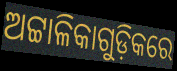
ଅଟ୍ଟାଳିକାଗୁଡ଼ିକରେ